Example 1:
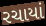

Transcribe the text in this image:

રચાયાં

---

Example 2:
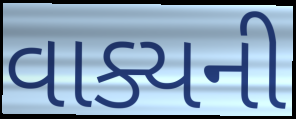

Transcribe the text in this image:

વાક્યની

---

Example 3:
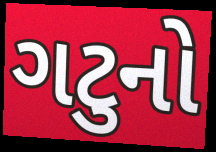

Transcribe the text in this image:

ગટુનો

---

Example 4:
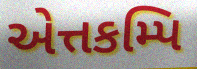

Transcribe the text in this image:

એત્તકમ્પિ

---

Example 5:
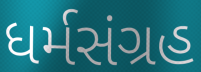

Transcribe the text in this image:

ધર્મસંગ્રહ